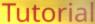
Tutorial